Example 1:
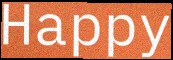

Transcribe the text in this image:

Happy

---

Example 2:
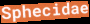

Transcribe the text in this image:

Sphecidae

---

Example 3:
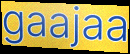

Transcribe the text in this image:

gaajaa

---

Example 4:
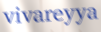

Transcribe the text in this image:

vivareyya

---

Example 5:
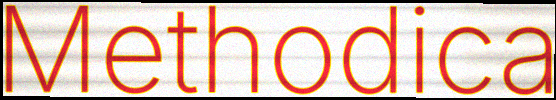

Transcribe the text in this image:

Methodica